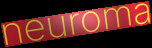
neuroma